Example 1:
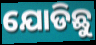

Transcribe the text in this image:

ଯୋଡିଛୁ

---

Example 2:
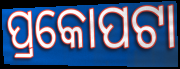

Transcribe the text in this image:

ପ୍ରକୋପଟା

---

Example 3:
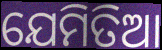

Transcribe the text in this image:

ଯେମିତିଆ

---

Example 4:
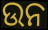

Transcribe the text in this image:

ଉନ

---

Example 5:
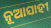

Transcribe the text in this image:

ନୂଆସାହୀ